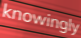
knowingly